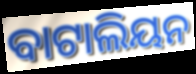
ବାଟାଲିୟନ